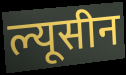
ल्यूसीन